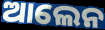
ଆଲେନ